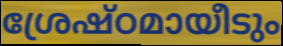
ശ്രേഷ്ഠമായീടും